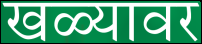
खळ्यावर